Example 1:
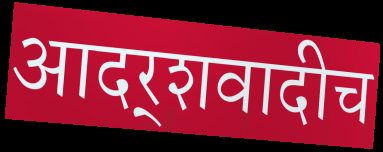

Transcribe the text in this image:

आदर्शवादीच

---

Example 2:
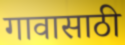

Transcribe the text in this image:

गावासाठी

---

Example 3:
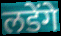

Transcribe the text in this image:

लडेंगे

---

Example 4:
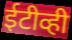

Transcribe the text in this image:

ईटीव्ही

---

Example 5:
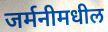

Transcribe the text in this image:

जर्मनीमधील